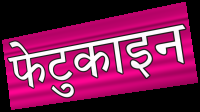
फेटुकाइन